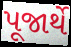
પૂજાર્થે